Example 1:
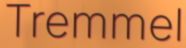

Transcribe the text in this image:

Tremmel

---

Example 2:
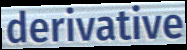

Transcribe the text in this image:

derivative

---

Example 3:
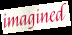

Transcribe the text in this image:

imagined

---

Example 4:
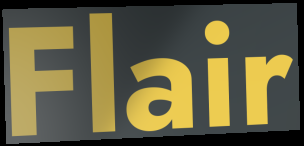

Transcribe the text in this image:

Flair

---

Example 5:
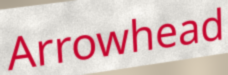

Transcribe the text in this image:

Arrowhead